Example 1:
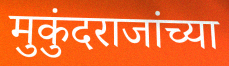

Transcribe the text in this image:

मुकुंदराजांच्या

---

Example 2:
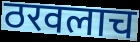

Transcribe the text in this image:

ठरवलाच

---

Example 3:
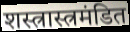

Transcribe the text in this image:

शस्त्रास्त्रमंडित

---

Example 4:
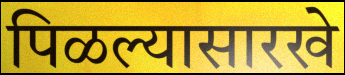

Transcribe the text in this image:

पिळल्यासारखे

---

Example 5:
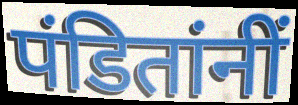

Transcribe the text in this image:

पंडितांनीं